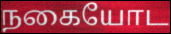
நகையோட